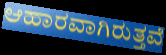
ಆಹಾರವಾಗಿರುತ್ತವೆ